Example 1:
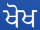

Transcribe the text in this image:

ਖੋਖ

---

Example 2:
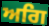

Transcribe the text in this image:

ਅਗਿ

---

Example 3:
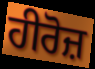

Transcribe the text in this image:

ਹੀਰੋਜ਼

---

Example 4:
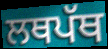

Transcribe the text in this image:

ਲਥਪੱਥ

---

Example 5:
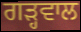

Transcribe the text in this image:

ਗੜ੍ਹਵਾਲ